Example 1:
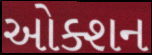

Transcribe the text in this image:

ઓક્શન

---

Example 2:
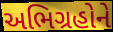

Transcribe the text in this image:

અભિગ્રહોને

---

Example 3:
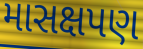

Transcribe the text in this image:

માસક્ષપણ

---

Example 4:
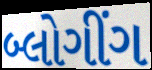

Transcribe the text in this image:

બ્લોગીંગ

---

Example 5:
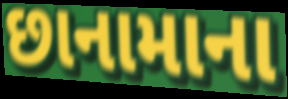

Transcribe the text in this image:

છાનામાના